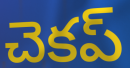
చెకప్